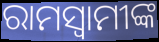
ରାମସ୍ୱାମୀଙ୍କ